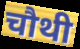
चौथी